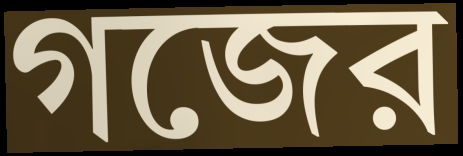
গজের